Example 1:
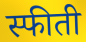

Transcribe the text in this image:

स्फीती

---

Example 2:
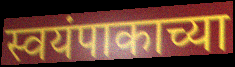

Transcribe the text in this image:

स्वयंपाकाच्या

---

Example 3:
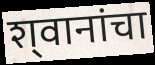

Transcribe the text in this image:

श्वानांचा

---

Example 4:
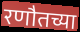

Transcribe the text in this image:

रणौतच्या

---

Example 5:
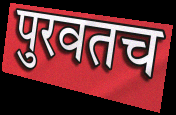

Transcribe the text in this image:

पुरवतच